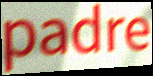
padre